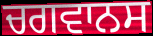
ਚਗਵਾਨਸ